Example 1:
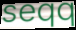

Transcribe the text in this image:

seqq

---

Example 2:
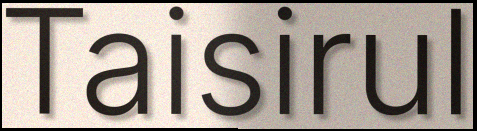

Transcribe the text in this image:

Taisirul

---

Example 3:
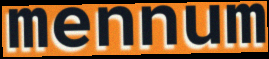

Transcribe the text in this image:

mennum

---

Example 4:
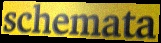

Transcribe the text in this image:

schemata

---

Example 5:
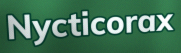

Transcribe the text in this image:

Nycticorax